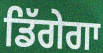
ਡਿੱਗੇਗਾ